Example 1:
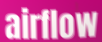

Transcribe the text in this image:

airflow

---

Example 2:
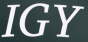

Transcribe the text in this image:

IGY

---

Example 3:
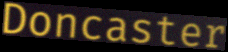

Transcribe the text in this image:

Doncaster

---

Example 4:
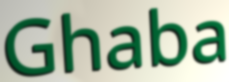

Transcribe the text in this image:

Ghaba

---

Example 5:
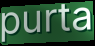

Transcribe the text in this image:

purta